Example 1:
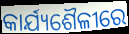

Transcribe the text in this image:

କାର୍ଯ୍ୟଶୈଳୀରେ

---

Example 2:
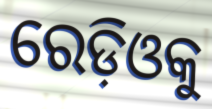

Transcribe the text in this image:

ରେଡ଼ିଓକୁ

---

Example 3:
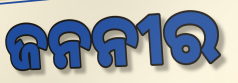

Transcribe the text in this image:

ଜନନୀର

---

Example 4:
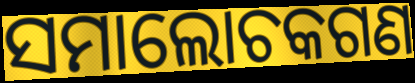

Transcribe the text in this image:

ସମାଲୋଚକଗଣ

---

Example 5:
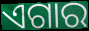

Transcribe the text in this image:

ଏଗାର